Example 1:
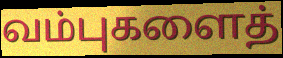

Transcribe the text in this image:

வம்புகளைத்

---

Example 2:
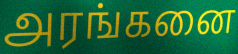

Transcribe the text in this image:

அரங்கனை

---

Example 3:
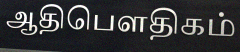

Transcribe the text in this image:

ஆதிபௌதிகம்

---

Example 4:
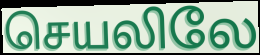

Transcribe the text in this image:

செயலிலே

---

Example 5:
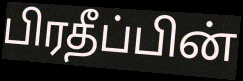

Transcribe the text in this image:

பிரதீப்பின்